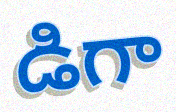
డిగా